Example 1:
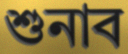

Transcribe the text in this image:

শুনাব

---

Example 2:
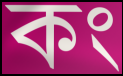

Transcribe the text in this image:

কং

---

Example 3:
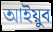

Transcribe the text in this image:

আইয়ুব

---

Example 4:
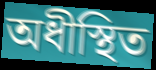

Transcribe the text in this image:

অধীস্থিত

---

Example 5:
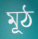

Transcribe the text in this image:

মূঠ